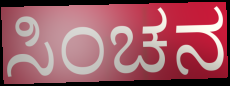
ಸಿಂಚನ